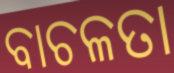
ବାଚଳତା